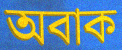
অবাক